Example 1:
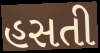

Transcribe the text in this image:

હસતી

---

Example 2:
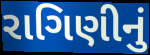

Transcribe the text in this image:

રાગિણીનું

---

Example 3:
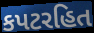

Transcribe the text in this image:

કપટરહિત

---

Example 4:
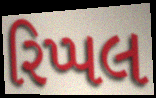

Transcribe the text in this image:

રિપ્પલ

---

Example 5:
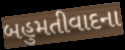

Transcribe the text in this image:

બહુમતીવાદના